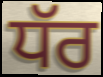
ਧੱਰ